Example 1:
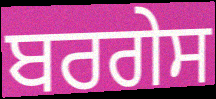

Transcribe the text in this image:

ਬਰਗੇਸ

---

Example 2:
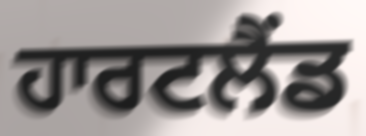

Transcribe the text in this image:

ਹਾਰਟਲੈਂਡ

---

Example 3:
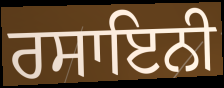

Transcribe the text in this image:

ਰਸਾਇਨੀ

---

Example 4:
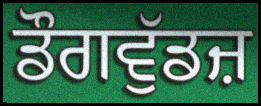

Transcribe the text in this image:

ਡੌਗਵੁੱਡਜ਼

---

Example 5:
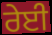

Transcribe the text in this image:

ਰੇਈ